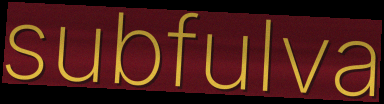
subfulva